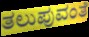
ತಲುಪುವಂತೆ